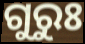
ଗୁରୁଃ